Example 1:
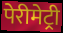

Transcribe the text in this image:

पेरीमेट्री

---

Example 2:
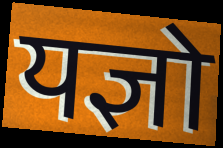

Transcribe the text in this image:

यज्ञो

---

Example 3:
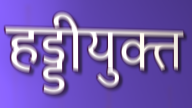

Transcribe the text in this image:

हड्डीयुक्त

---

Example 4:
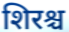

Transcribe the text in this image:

शिरश्च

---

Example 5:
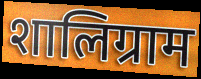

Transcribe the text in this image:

शालिग्राम